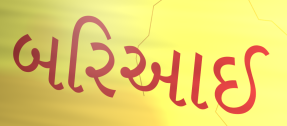
બરિઆઈ